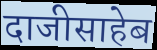
दाजीसाहेब